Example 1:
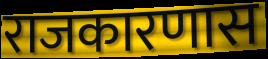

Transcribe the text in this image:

राजकारणास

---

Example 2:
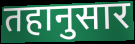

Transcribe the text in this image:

तहानुसार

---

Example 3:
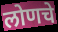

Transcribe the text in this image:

लोणचे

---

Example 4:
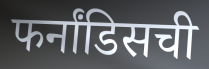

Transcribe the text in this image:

फर्नांडिसची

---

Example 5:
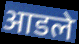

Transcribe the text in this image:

आडले